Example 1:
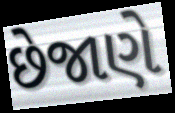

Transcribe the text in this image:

છેજાણે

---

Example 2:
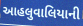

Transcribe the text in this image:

આહલુવાલિયાની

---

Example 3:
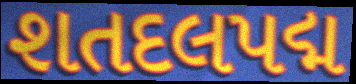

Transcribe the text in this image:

શતદલપદ્મ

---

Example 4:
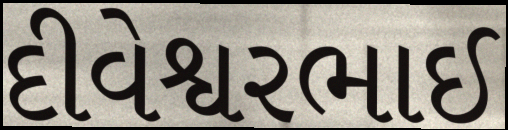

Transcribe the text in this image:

દીવેશ્વરભાઈ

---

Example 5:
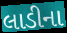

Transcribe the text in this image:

લાડીના